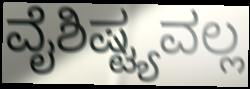
ವೈಶಿಷ್ಟ್ಯವಲ್ಲ